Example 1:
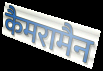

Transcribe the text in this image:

कैमरामैन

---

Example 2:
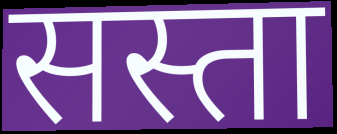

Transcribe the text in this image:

सस्ता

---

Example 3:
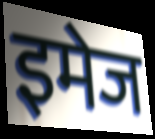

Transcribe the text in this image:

इमेज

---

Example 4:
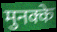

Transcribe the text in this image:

मुनक्के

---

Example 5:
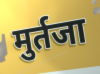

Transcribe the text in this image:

मुर्तजा